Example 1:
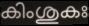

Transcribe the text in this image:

കിംശുകഃ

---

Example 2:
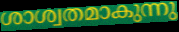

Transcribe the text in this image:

ശാശ്വതമാകുന്നു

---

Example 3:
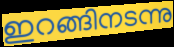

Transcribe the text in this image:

ഇറങ്ങിനടന്നു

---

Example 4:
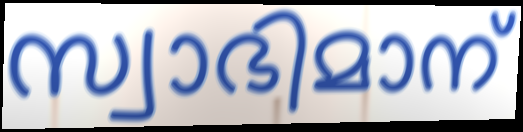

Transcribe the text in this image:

സ്വാഭിമാന്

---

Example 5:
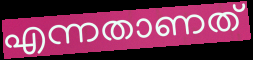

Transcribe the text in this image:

എന്നതാണത്